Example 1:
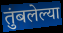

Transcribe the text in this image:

तुंबलेल्या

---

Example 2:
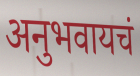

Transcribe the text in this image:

अनुभवायचं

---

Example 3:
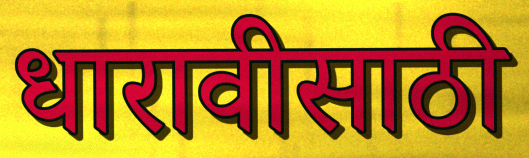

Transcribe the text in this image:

धारावीसाठी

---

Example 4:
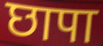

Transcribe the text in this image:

छापा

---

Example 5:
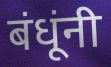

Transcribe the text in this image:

बंधूंनी